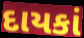
દાયકાં